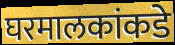
घरमालकांकडे